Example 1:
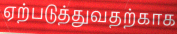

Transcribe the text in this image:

ஏற்படுத்துவதற்காக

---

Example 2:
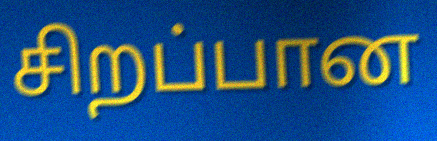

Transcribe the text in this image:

சிறப்பான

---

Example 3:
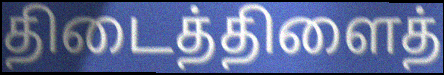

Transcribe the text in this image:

திடைத்திளைத்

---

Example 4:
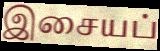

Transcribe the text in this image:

இசையப்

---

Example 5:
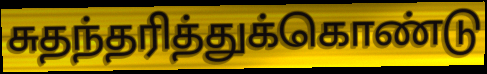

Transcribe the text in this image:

சுதந்தரித்துக்கொண்டு